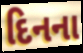
દિનના